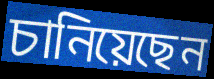
চানিয়েছেন